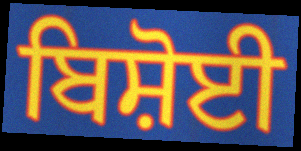
ਬਿਸ਼ੋਈ